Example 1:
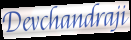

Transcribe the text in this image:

Devchandraji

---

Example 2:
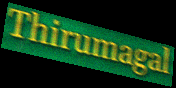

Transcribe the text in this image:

Thirumagal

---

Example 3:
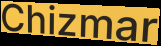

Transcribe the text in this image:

Chizmar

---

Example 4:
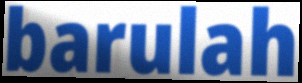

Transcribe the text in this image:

barulah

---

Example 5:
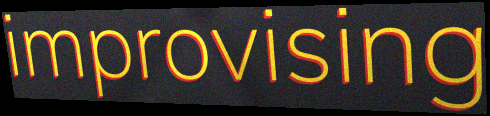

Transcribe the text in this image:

improvising